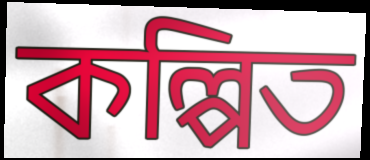
কল্পিত